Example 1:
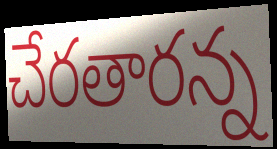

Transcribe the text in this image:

చేరతారన్న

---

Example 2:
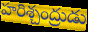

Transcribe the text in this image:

హరిశ్చంద్రుడు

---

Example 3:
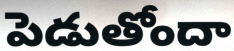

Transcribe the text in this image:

పెడుతోందా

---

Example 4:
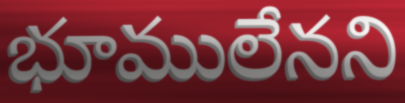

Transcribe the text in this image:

భూములేనని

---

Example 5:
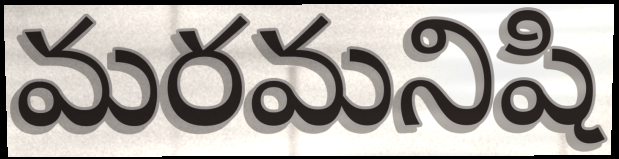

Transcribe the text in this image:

మరమనిషి